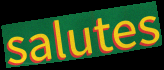
salutes